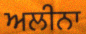
ਅਲੀਨਾ